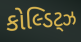
કોલ્ડિટ્ઝ